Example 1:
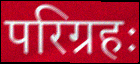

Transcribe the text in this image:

परिग्रहः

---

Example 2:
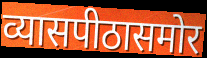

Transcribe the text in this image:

व्यासपीठासमोर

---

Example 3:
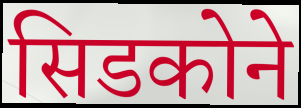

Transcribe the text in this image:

सिडकोने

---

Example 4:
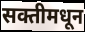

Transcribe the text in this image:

सक्तीमधून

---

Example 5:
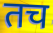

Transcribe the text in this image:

तच